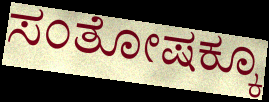
ಸಂತೋಷಕ್ಕೂ